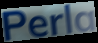
Perla